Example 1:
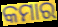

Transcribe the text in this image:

କମାର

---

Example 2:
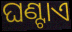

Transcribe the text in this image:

ଘଣ୍ଟାଏ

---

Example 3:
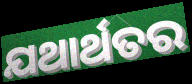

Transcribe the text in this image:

ଯଥାର୍ଥତର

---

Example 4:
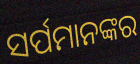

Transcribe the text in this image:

ସର୍ପମାନଙ୍କର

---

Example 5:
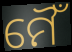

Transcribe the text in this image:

ମୈଁ